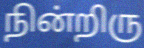
நின்றிரு